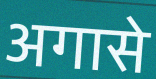
अगासे